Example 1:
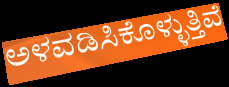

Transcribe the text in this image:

ಅಳವಡಿಸಿಕೊಳ್ಳುತ್ತಿವೆ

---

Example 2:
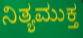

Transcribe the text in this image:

ನಿತ್ಯಮುಕ್ತ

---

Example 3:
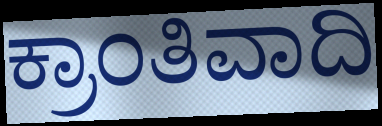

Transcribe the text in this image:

ಕ್ರಾಂತಿವಾದಿ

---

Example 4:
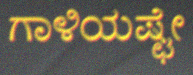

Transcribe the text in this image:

ಗಾಳಿಯಷ್ಟೇ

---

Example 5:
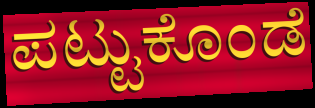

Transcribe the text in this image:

ಪಟ್ಟುಕೊಂಡೆ